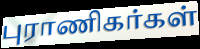
புராணிகர்கள்